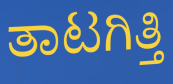
ತಾಟಗಿತ್ತಿ